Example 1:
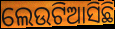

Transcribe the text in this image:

ଲେଉଟିଆସିଛି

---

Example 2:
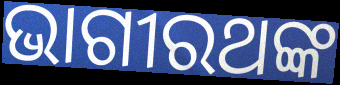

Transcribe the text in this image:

ଭାଗୀରଥଙ୍କ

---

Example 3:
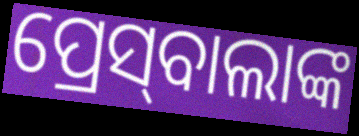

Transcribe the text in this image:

ପ୍ରେସ୍‌ବାଲାଙ୍କ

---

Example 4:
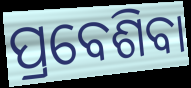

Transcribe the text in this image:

ପ୍ରବେଶିବା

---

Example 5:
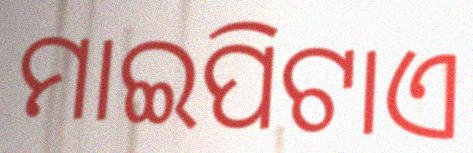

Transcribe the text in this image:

ମାଇପିଟାଏ